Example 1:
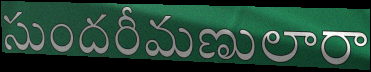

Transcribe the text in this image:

సుందరీమణులారా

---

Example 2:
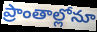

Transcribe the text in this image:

ప్రాంతాల్లోనూ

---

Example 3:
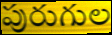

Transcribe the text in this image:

పురుగుల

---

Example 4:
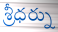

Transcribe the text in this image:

శ్రీధర్ను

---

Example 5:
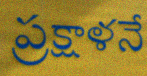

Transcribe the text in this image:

ప్రక్షాళనే